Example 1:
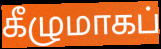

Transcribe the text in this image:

கீழுமாகப்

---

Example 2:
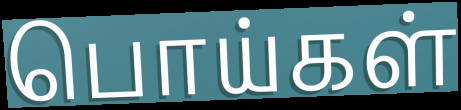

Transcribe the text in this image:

பொய்கள்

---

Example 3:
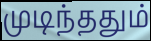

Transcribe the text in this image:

முடிந்ததும்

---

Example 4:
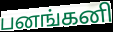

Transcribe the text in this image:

பனங்கனி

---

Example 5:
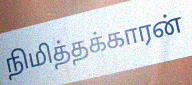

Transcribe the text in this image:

நிமித்தக்காரன்